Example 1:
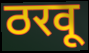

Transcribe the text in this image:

ठरवू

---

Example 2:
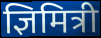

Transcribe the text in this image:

ज्ञिमित्री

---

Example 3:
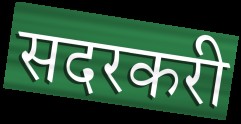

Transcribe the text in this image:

सदरकरी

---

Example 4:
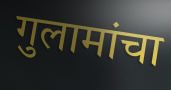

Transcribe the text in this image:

गुलामांचा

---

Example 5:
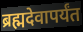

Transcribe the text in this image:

ब्रह्मदेवापर्यंत